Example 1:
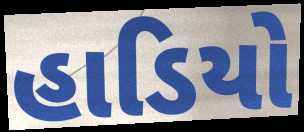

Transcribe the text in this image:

હાડિયો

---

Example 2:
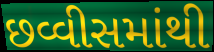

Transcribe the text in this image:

છવ્વીસમાંથી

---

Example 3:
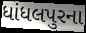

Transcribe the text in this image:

ધાંધલપુરના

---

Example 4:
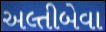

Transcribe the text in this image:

અલ્તીબેવા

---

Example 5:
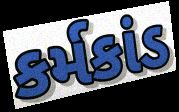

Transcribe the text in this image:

કર્મકાંડ